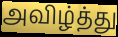
அவிழ்த்து